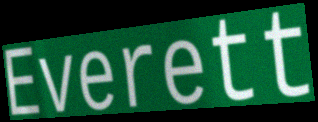
Everett